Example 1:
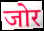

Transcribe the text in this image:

जोर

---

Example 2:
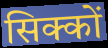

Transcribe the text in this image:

सिक्‍कों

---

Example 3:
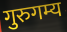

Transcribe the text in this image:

गुरुगम्य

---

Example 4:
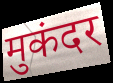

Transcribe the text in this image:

मुकंदर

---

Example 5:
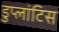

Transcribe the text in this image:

डुप्लांटिस